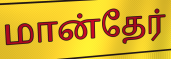
மான்தேர்